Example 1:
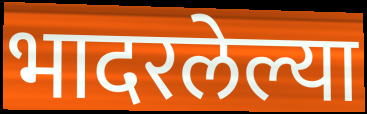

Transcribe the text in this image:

भादरलेल्या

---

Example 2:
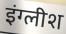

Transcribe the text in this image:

इंग्लीश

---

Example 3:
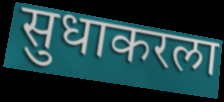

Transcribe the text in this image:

सुधाकरला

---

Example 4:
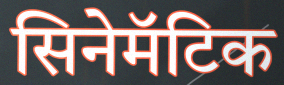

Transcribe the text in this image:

सिनेमॅटिक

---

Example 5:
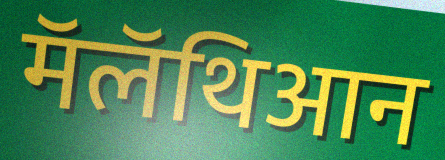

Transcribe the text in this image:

मॅलॅथिआन